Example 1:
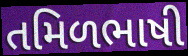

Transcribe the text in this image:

તમિળભાષી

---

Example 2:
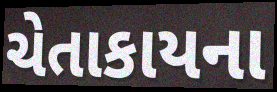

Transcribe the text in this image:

ચેતાકાયના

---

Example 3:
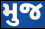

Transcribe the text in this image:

મુજ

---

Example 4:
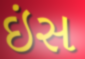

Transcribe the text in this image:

ઇંસ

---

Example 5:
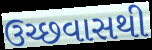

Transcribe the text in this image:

ઉચ્છવાસથી